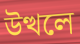
উত্থলে